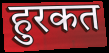
हुरकत